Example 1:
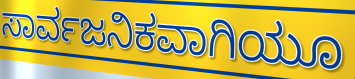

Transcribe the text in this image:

ಸಾರ್ವಜನಿಕವಾಗಿಯೂ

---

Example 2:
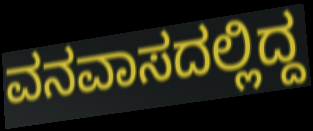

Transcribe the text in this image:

ವನವಾಸದಲ್ಲಿದ್ದ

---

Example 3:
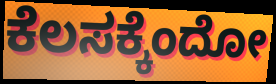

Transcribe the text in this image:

ಕೆಲಸಕ್ಕೆಂದೋ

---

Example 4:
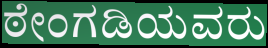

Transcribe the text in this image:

ಠೇಂಗಡಿಯವರು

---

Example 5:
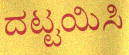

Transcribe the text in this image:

ದಟ್ಟಯಿಸಿ